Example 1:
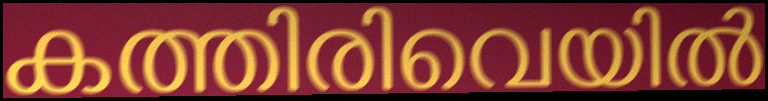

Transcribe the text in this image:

കത്തിരിവെയിൽ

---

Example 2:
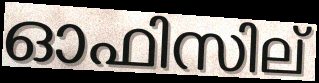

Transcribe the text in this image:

ഓഫിസില്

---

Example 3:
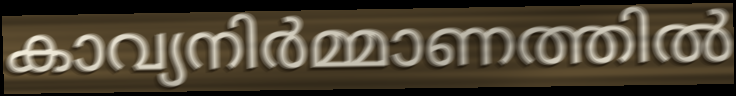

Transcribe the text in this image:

കാവ്യനിർമ്മാണത്തിൽ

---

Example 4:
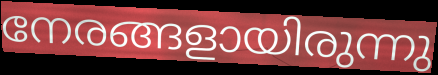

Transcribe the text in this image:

നേരങ്ങളായിരുന്നു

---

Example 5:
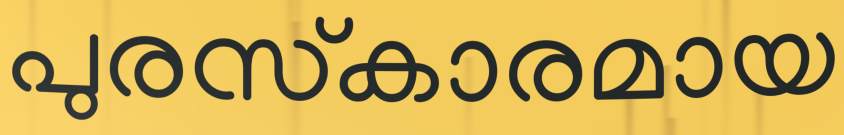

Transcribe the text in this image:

പുരസ്‌കാരമായ